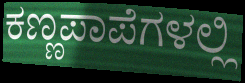
ಕಣ್ಣಪಾಪೆಗಳಲ್ಲಿ